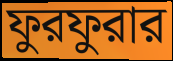
ফুরফুরার